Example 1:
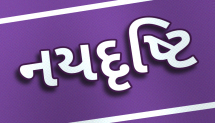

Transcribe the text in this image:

નયદૃષ્ટિ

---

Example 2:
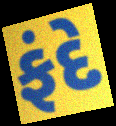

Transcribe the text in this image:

ફંદે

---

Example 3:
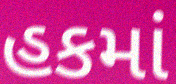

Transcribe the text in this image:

હકમાં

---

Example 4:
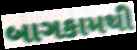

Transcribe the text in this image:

બાગકામથી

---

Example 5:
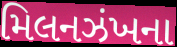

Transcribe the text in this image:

મિલનઝંખના